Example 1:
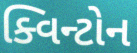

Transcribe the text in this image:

ક્વિન્ટોન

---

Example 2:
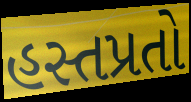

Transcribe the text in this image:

હસ્તપ્રતો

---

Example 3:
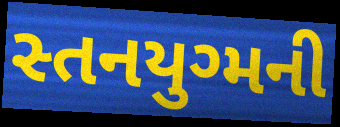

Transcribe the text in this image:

સ્તનયુગ્મની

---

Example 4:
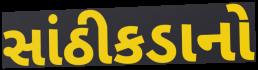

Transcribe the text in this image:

સાંઠીકડાનો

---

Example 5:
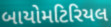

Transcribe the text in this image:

બાયોમટિરિયલ